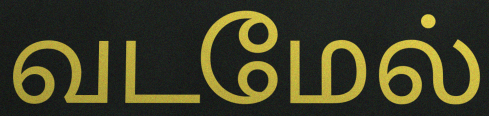
வடமேல்